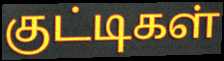
குட்டிகள்